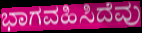
ಭಾಗವಹಿಸಿದೆವು